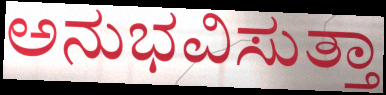
ಅನುಭವಿಸುತ್ತಾ